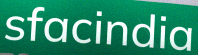
sfacindia